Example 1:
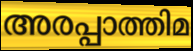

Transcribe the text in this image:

അരപ്പാത്തിമ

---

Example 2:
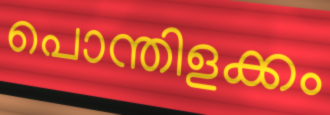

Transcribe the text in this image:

പൊന്തിളക്കം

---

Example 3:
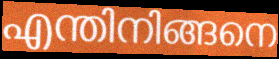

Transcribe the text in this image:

എന്തിനിങ്ങനെ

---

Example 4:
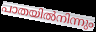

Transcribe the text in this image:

പാതയിൽനിന്നും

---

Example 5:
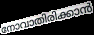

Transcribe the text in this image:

നോവാതിരിക്കാൻ